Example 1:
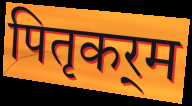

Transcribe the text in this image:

पितृकर्म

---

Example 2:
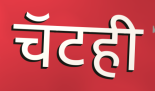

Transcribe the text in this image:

चॅटही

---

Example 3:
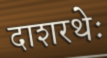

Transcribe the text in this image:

दाशरथेः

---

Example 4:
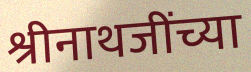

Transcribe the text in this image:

श्रीनाथजींच्या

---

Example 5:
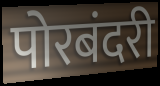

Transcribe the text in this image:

पोरबंदरी